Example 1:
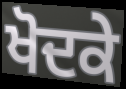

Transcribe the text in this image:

ਖੋਦਕੇ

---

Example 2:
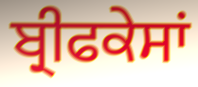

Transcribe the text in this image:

ਬ੍ਰੀਫਕੇਸਾਂ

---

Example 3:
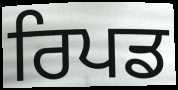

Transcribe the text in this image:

ਰਿਪਡ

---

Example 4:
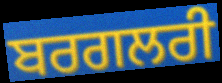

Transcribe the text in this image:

ਬਰਗਲਰੀ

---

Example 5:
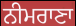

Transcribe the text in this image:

ਨੀਮਰਾਣਾ